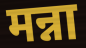
मन्ना